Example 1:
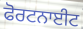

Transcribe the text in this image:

ਫੋਰਟਨਾਈਟ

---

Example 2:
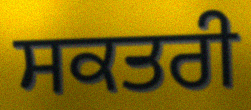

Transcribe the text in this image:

ਸਕਤਰੀ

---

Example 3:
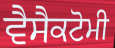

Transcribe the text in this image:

ਵੈਸੈਕਟੋਮੀ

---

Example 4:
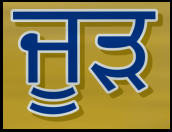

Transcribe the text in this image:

ਜੂੜ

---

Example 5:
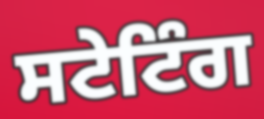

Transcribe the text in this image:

ਸਟੇਟਿੰਗ